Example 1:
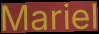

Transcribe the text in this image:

Mariel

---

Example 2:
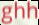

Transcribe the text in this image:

ghh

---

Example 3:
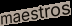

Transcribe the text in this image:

maestros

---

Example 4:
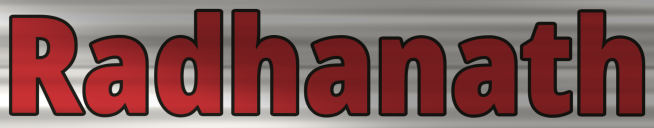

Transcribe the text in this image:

Radhanath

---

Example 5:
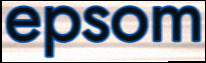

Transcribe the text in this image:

epsom